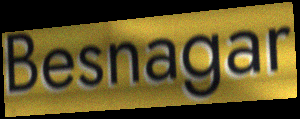
Besnagar